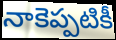
నాకెప్పటికీ